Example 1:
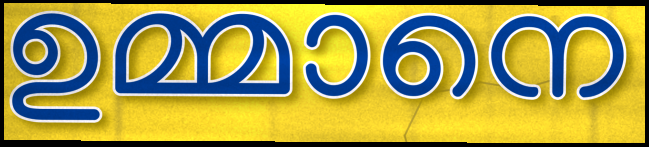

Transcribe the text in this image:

ഉമ്മാനെ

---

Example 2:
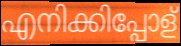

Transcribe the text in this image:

എനിക്കിപ്പോള്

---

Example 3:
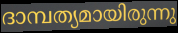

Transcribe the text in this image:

ദാമ്പത്യമായിരുന്നു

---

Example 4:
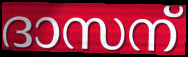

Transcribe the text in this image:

ദാസന്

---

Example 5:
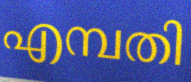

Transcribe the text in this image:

എമ്പതി